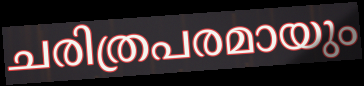
ചരിത്രപരമായും